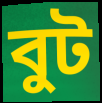
বুট